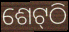
ଶେଟ୍‍ଠି